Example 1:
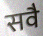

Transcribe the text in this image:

सवै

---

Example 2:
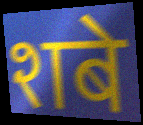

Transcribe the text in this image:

शबे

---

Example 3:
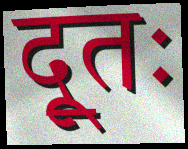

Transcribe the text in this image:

दू॒तः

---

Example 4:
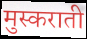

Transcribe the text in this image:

मुस्कराती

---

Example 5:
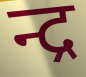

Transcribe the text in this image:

न्द्र